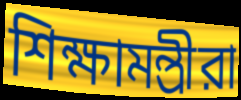
শিক্ষামন্ত্রীরা